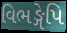
વિભઙ્ગેપિ